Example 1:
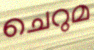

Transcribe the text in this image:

ചെറുമ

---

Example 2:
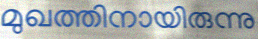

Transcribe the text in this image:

മുഖത്തിനായിരുന്നു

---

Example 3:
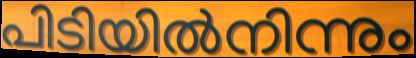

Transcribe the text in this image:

പിടിയിൽനിന്നും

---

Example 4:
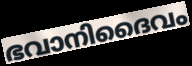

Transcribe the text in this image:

ഭവാനിദൈവം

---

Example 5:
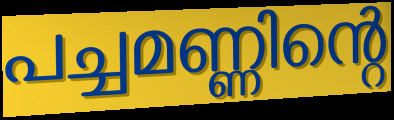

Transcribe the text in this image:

പച്ചമണ്ണിന്റെ